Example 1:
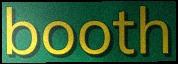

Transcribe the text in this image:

booth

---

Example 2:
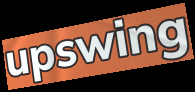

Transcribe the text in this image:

upswing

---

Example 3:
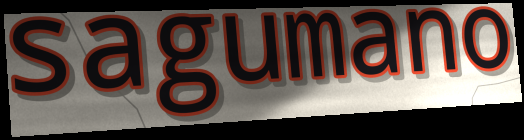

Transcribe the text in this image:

sagumano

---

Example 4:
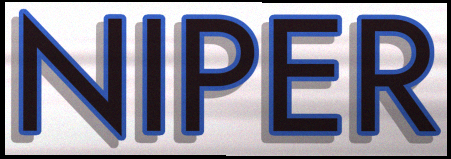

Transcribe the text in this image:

NIPER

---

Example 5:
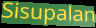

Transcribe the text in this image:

Sisupalan